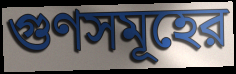
গুণসমূহের